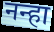
नन्हा